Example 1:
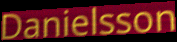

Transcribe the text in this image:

Danielsson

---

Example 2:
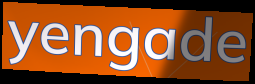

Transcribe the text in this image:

yengade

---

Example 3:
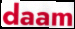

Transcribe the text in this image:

daam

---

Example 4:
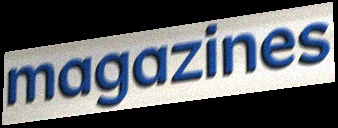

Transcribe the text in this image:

magazines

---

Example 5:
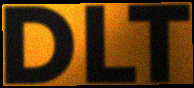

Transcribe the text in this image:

DLT